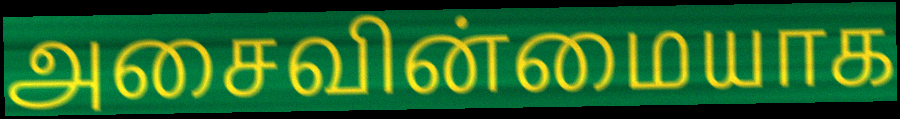
அசைவின்மையாக